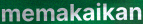
memakaikan